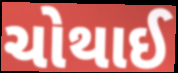
ચોથાઈ